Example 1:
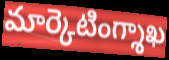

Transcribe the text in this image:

మార్కెటింగ్శాఖ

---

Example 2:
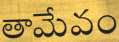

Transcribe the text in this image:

తామేవం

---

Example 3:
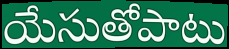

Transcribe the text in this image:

యేసుతోపాటు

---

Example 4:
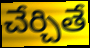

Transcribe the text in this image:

చేర్చితే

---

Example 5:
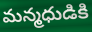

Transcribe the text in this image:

మన్మధుడికి